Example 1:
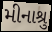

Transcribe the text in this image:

મીનાશ્રુ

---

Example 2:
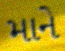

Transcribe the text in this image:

માને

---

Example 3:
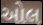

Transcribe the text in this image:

ઓલ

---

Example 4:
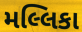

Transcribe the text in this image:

મલ્લિકા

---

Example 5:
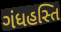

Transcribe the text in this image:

ગંધહસ્તિ